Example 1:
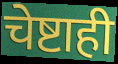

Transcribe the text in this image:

चेष्टाही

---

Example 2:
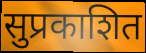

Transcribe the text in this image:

सुप्रकाशित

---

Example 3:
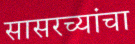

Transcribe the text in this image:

सासरच्यांचा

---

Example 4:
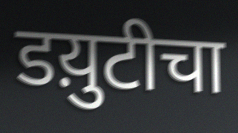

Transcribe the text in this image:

डय़ुटीचा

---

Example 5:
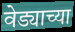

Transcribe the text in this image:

वेड्याच्या